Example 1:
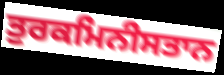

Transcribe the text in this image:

ਤੁਰਕਮਿਨੀਸਤਾਨ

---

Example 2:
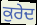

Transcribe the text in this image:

ਕੁਰੇਦ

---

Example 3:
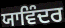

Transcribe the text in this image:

ਯਾਵਿੰਦਰ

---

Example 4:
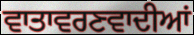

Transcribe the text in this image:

ਵਾਤਾਵਰਣਵਾਦੀਆਂ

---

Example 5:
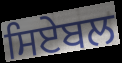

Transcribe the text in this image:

ਸਿਏਬਲ